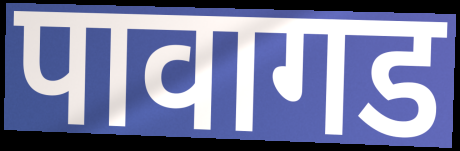
पावागड